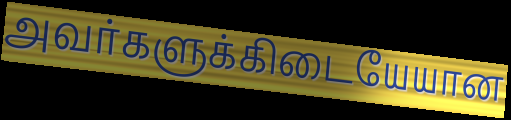
அவர்களுக்கிடையேயான